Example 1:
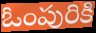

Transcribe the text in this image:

ఓంపురికి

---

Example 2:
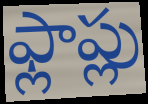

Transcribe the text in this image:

ఫ్లాప్లు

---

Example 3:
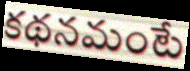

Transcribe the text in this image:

కథనమంటే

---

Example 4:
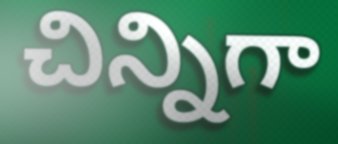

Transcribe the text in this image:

చిన్నిగా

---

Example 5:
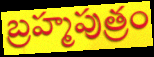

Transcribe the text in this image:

బ్రహ్మపుత్రం